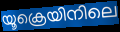
യൂക്രെയിനിലെ